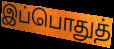
இப்பொதுத்